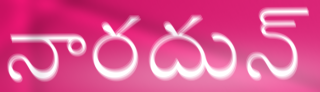
నారదున్